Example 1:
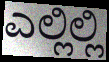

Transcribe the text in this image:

ಎಲ್ಲಿಲ್ಲಿ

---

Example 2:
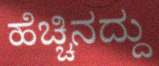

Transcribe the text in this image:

ಹೆಚ್ಚಿನದ್ದು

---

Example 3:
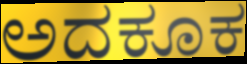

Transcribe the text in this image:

ಅದಕೂಕ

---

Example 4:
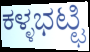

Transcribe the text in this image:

ಕಳ್ಳಭಟ್ಟಿ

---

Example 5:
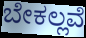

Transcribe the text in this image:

ಬೇಕಲ್ಲವೆ